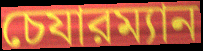
চেযারম্যান